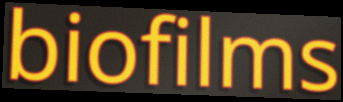
biofilms